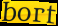
bort